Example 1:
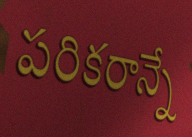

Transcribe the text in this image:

పరికరాన్నే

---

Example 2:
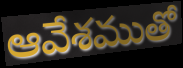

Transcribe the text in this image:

ఆవేశముతో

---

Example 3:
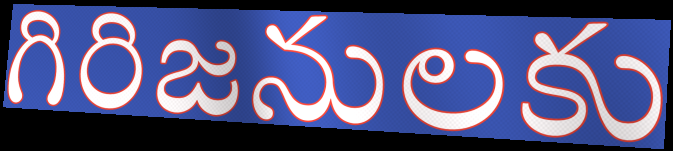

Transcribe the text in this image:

గిరిజనులకు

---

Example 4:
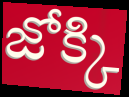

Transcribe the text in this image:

జోక్కి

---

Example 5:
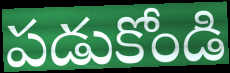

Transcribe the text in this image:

పడుకోండి